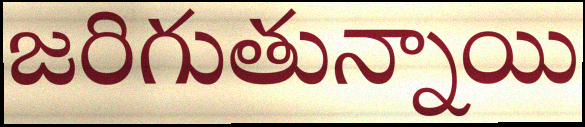
జరిగుతున్నాయి